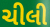
ચીલી